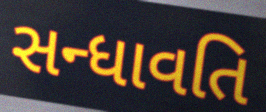
સન્ધાવતિ